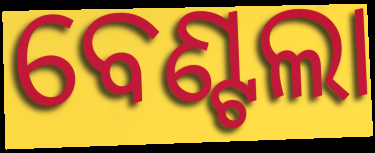
ବେଣ୍ଟଲା